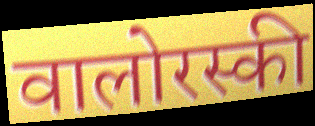
वालोरस्की